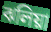
ঝলিয়া